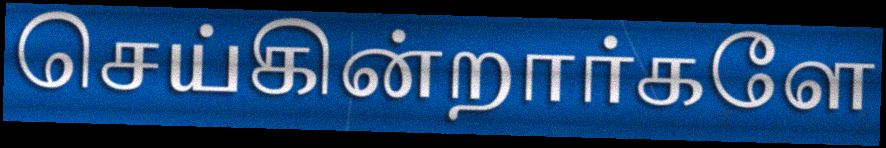
செய்கின்றார்களே